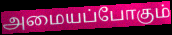
அமையப்போகும்